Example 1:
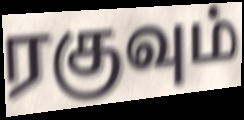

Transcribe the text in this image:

ரகுவும்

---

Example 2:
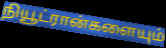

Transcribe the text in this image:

நியூட்ரான்களையும்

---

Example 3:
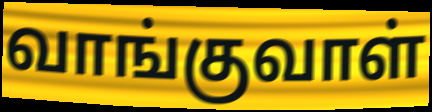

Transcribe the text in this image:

வாங்குவாள்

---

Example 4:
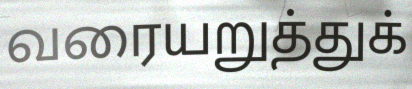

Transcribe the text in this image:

வரையறுத்துக்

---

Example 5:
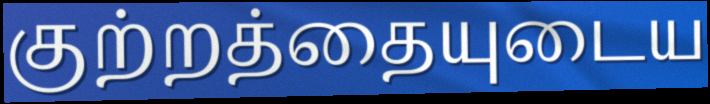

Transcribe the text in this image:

குற்றத்தையுடைய